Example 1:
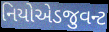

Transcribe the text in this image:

નિયોએડજુવન્ટ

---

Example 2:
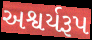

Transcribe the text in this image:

અશ્વર્યરૂપ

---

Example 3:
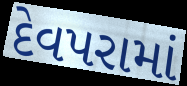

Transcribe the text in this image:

દેવપરામાં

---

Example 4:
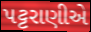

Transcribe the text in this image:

પટ્ટરાણીએ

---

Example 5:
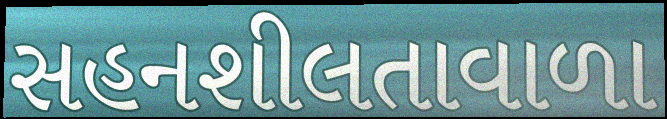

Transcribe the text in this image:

સહનશીલતાવાળા